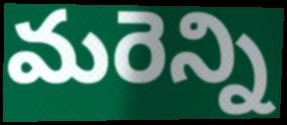
మరెన్ని